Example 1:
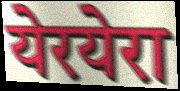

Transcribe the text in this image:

येरयेरा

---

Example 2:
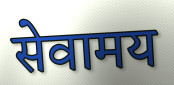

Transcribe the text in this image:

सेवामय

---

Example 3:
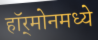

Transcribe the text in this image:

हॉर्मोनमध्ये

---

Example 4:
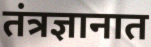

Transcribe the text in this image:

तंत्रज्ञानात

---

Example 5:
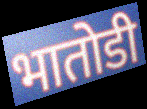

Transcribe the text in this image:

भातोडी